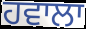
ਹਵਾਲਾ